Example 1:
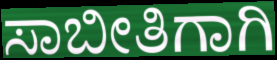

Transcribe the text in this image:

ಸಾಬೀತಿಗಾಗಿ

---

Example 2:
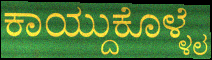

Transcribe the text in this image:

ಕಾಯ್ದುಕೊಳ್ಳೈ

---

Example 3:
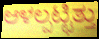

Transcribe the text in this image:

ಆಳಲ್ಪಟ್ಟಿತ್ತು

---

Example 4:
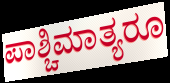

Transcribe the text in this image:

ಪಾಶ್ಚಿಮಾತ್ಯರೂ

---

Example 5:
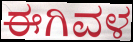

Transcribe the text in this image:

ಈಗಿವಳ